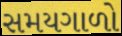
સમયગાળો